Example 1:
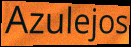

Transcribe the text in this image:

Azulejos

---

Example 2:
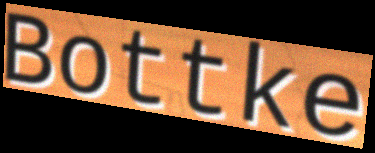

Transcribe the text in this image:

Bottke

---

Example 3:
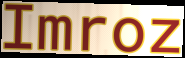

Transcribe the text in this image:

Imroz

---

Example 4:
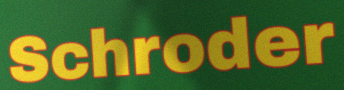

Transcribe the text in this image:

Schroder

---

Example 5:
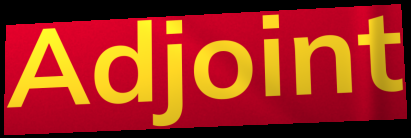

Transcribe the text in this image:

Adjoint